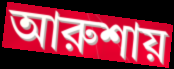
আরুশায়